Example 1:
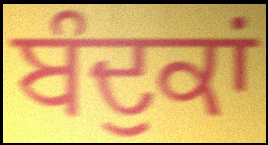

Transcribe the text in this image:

ਬੰਦੁਕਾਂ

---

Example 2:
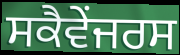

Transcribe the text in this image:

ਸਕੈਵੇਂਜਰਸ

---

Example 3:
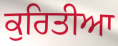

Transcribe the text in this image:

ਕੁਰਿਤੀਆ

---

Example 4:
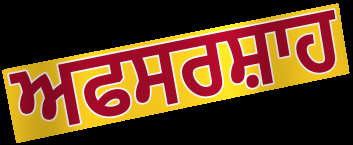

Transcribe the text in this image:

ਅਫਸਰਸ਼ਾਹ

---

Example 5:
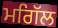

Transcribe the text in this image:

ਮਗਿੱਲ